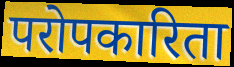
परोपकारिता